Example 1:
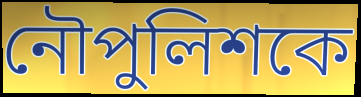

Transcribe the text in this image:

নৌপুলিশকে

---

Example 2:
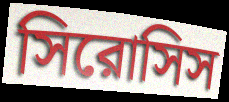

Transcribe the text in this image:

সিরোসিস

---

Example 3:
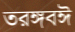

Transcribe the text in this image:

তরঙ্গবঈ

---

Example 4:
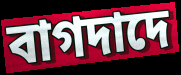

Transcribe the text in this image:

বাগদাদে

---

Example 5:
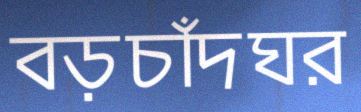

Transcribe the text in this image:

বড়চাঁদঘর